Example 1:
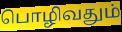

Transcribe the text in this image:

பொழிவதும்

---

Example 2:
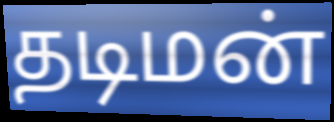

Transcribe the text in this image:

தடிமன்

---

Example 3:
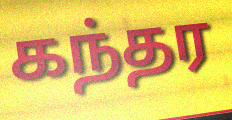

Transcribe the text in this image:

கந்தர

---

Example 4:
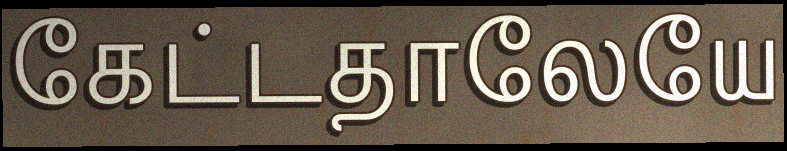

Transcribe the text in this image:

கேட்டதாலேயே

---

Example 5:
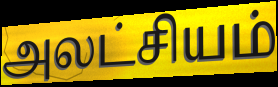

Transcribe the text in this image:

அலட்சியம்